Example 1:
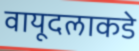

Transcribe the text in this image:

वायूदलाकडे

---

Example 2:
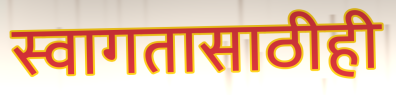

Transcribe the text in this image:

स्वागतासाठीही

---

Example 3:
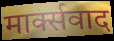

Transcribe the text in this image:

मार्क्सवाद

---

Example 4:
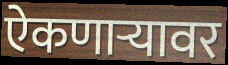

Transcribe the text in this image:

ऐकणार्‍यावर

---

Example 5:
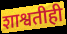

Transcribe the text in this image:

शाश्वतीही